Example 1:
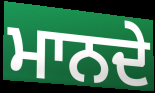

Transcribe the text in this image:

ਮਾਨਦੇ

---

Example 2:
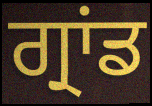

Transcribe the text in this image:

ਗ੍ਰਾਂਡ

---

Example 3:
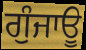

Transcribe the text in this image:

ਗੁੰਜਾਊ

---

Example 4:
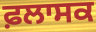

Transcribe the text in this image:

ਫ਼ਲਾਸਕ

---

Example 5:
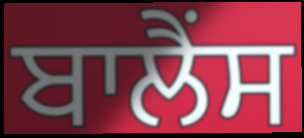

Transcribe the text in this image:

ਬਾਲੈਂਸ